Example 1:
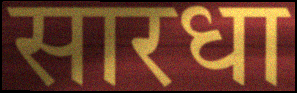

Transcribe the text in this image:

सारधा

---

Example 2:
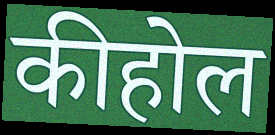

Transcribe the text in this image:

कीहोल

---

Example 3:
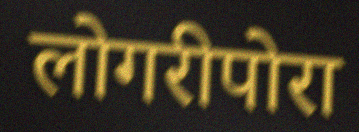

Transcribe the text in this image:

लोगरीपोरा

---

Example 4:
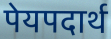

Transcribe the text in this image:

पेयपदार्थ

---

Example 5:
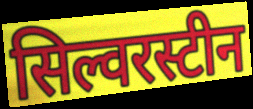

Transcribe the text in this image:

सिल्वरस्टीन